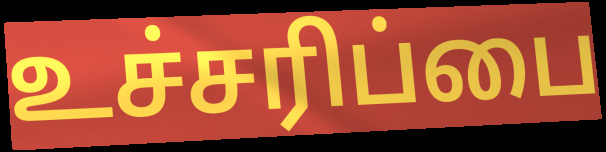
உச்சரிப்பை